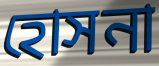
হোসনা